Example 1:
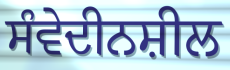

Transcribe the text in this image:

ਸੰਵੇਦੀਨਸ਼ੀਲ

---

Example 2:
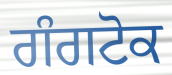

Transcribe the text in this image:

ਗੰਗਟੋਕ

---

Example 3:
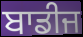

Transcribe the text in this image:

ਬਾਡੀਜ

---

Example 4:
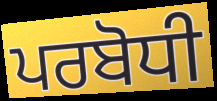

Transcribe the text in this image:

ਪਰਬੋਧੀ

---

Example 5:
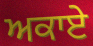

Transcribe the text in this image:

ਅਕਾਏ